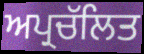
ਅਪ੍ਰਚੱਲਿਤ